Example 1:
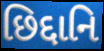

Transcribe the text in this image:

છિદ્દાનિ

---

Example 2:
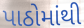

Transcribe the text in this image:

પાઠોમાંથી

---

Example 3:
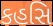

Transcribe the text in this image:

કહસિ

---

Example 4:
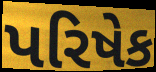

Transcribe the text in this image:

પરિષેક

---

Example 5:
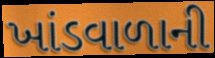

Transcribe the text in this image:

ખાંડવાળાની